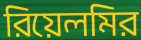
রিয়েলমির